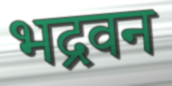
भद्रवन